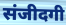
संजीदगी